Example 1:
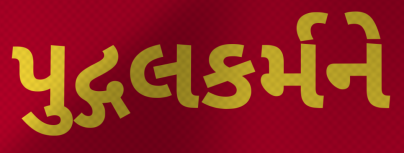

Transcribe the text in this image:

પુદ્ગલકર્મને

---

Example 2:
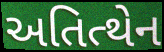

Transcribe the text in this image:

અતિત્થેન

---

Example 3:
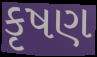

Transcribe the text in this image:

કૃષણ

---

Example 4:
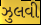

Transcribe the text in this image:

ઝુલવી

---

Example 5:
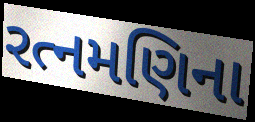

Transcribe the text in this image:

રત્નમણિના